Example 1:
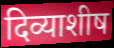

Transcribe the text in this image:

दिव्याशीष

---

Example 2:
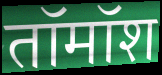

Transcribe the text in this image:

तॉमॉश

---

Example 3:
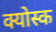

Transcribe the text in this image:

क्योस्क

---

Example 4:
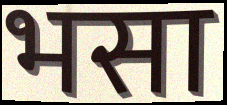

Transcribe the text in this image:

भसा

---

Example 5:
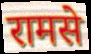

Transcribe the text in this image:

रामसे